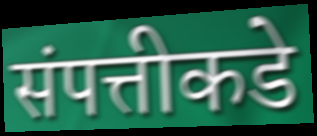
संपत्तीकडे